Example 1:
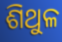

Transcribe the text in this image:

ଶିଥୁଳ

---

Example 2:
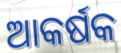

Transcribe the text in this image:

ଆକର୍ଷକ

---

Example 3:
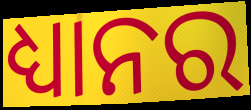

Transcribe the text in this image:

ଧ୍ୟାନର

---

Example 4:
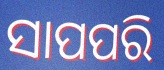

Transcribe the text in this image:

ସାପପରି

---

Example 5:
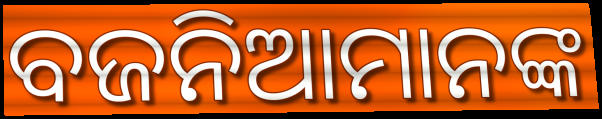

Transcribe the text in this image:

ବଜନିଆମାନଙ୍କ